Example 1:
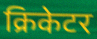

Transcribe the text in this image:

क्रिकेटर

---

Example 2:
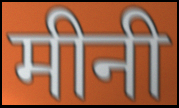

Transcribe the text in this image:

मीनी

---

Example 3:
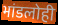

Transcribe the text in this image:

भांडलोही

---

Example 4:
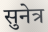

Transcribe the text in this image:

सुनेत्र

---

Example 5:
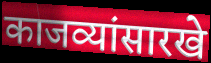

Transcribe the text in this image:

काजव्यांसारखे